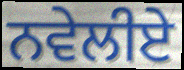
ਨਵੇਲੀਏ